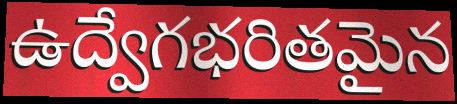
ఉద్వేగభరితమైన